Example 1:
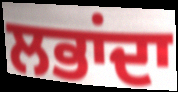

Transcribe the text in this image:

ਲਭਾਂਦਾ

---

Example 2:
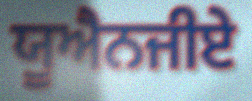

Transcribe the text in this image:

ਯੂਐਨਜੀਏ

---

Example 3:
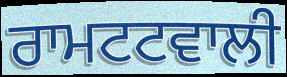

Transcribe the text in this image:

ਰਾਮਟਟਵਾਲੀ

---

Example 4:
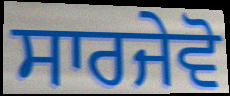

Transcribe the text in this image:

ਸਾਰਜੇਵੋ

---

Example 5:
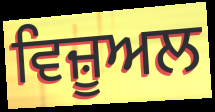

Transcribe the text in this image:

ਵਿਜ਼ੂਅਲ